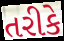
તરીકે